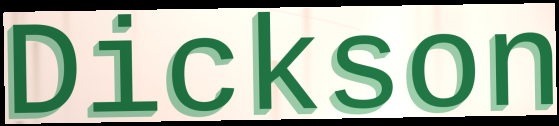
Dickson